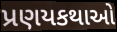
પ્રણયકથાઓ